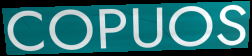
COPUOS